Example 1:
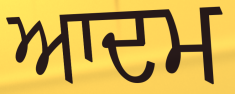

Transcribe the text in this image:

ਆਦਮ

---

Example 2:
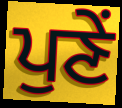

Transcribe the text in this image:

ਪੁਣੇਂ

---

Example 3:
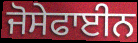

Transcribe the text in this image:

ਜੋਸੇਫਾਈਨ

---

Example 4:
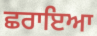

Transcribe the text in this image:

ਛਰਾਇਆ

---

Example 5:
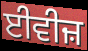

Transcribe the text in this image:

ਈਵੀਜ਼